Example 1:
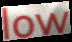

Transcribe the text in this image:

low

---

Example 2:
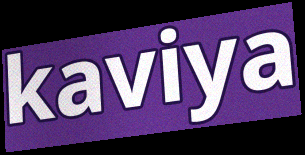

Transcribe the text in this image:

kaviya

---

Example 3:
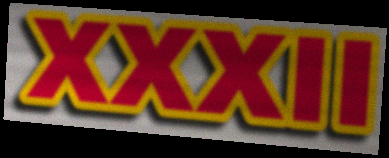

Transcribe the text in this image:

XXXII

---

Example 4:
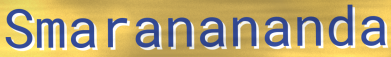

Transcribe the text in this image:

Smaranananda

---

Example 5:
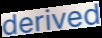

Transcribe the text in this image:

derived